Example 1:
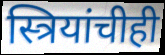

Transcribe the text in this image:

स्त्रियांचीही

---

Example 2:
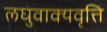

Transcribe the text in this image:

लघुवाक्यवृत्ति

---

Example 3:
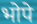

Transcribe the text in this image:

भोपे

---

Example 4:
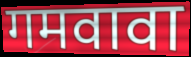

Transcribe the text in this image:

गमवावा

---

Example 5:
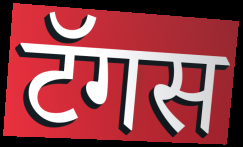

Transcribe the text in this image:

टॅगस